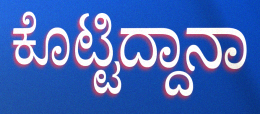
ಕೊಟ್ಟಿದ್ದಾನಾ